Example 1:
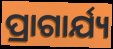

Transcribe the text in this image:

ପ୍ରାଗାର୍ଯ୍ୟ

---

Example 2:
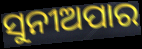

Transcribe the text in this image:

ସୁନୀଅପାର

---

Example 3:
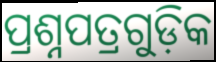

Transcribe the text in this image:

ପ୍ରଶ୍ନପତ୍ରଗୁଡ଼ିକ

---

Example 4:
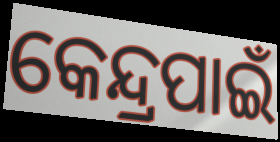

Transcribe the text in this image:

କେନ୍ଦ୍ରପାଇଁ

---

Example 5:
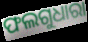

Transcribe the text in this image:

ଫଲଗୁଧାରା